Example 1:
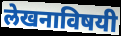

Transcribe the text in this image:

लेखनाविषयी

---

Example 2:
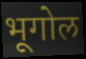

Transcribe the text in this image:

भूगोल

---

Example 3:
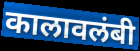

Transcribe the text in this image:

कालावलंबी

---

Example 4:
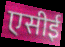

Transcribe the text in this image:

एसीई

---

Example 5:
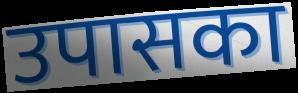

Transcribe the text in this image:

उपासका